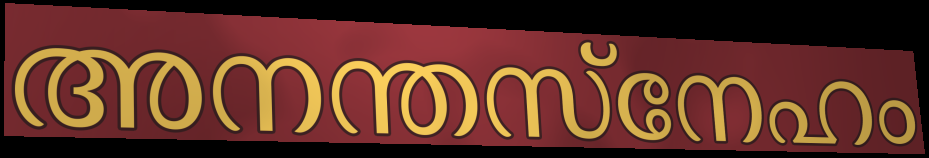
അനന്തസ്നേഹം